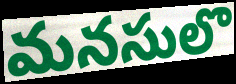
మనసులొ